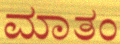
ಮಾತಂ